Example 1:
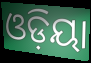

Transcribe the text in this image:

ଓଡ଼ିୟା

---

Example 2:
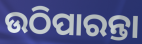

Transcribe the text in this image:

ଉଠିପାରନ୍ତା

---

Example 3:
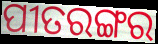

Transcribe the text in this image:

ପୀତରଙ୍ଗର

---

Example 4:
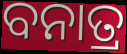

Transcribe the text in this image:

ବନାତ୍ର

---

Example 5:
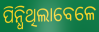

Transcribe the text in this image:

ପିନ୍ଧିଥିଲାବେଳେ